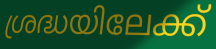
ശ്രദ്ധയിലേക്ക്